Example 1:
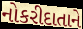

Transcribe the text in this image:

નોકરીદાતાને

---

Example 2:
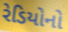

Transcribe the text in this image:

રેડિયોનો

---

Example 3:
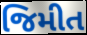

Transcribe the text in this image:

જિમીત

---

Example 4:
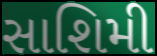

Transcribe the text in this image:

સાશિમી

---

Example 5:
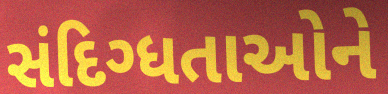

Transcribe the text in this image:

સંદિગ્ધતાઓને